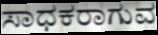
ಸಾಧಕರಾಗುವ